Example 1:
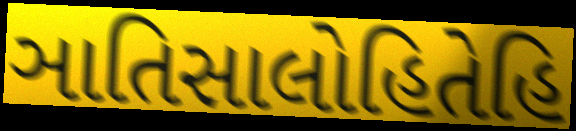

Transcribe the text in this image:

ઞાતિસાલોહિતેહિ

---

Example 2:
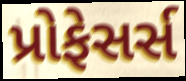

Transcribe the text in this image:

પ્રોફેસર્સ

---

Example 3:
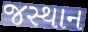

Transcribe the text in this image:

જસ્થાન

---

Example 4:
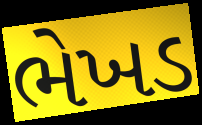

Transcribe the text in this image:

ભેખડ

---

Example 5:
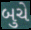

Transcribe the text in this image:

બુચે